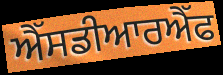
ਐੱਸਡੀਆਰਐੱਫ